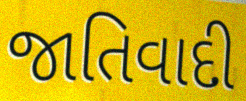
જાતિવાદી